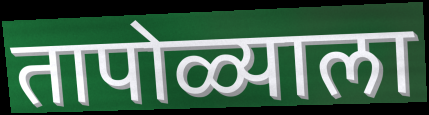
तापोळ्याला